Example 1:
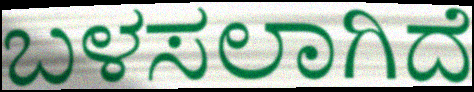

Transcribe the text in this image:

ಬಳಸಲಾಗಿದೆ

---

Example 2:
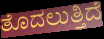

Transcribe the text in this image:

ತೊದಲುತ್ತಿದೆ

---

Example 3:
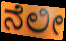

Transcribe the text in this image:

ನೆಲೀ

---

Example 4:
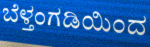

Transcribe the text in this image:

ಬೆಳ್ತಂಗಡಿಯಿಂದ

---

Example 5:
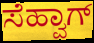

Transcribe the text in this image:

ಸೆಹ್ವಾಗ್